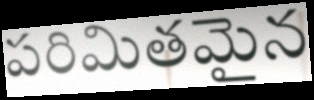
పరిమితమైన